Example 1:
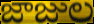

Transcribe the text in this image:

జాజుల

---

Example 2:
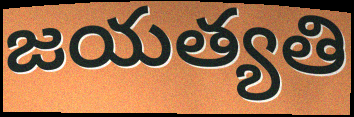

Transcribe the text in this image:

జయత్యతి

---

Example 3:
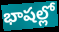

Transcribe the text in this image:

భాషల్లో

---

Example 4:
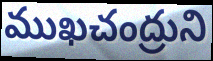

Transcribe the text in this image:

ముఖచంద్రుని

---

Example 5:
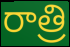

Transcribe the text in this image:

రాత్రి